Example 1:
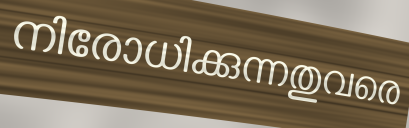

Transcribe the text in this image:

നിരോധിക്കുന്നതുവരെ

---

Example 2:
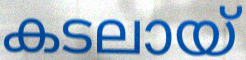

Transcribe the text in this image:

കടലായ്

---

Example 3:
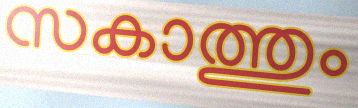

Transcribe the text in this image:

സകാത്തും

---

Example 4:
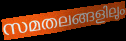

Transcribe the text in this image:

സമതലങ്ങളിലും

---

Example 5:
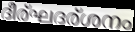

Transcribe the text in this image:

ദീര്ഘദര്ശനം